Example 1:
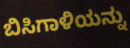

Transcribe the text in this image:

ಬಿಸಿಗಾಳಿಯನ್ನು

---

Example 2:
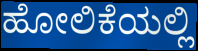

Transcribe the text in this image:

ಹೋಲಿಕೆಯಲ್ಲಿ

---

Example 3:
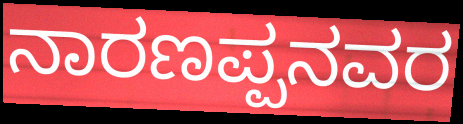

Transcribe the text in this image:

ನಾರಣಪ್ಪನವರ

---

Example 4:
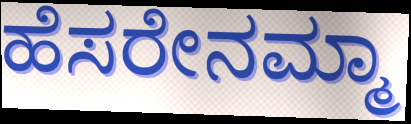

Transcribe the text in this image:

ಹೆಸರೇನಮ್ಮಾ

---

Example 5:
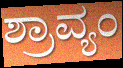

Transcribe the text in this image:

ಶ್ರಾವ್ಯಂ